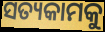
ସତ୍ୟକାମକୁ